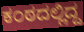
ಕಂಠದಲ್ಲಿದ್ದ